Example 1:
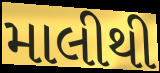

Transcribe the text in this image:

માલીથી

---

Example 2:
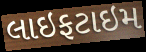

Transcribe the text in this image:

લાઇફટાઇમ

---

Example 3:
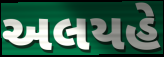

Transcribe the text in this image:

અલયહે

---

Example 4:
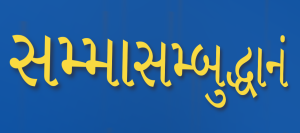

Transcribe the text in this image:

સમ્માસમ્બુદ્ધાનં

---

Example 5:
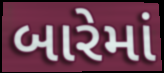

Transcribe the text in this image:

બારેમાં